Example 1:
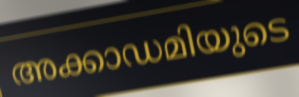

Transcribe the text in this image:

അക്കാഡമിയുടെ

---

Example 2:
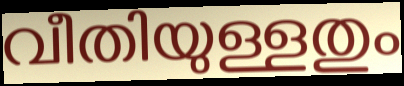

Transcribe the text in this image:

വീതിയുള്ളതും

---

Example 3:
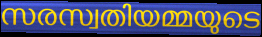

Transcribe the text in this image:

സരസ്വതിയമ്മയുടെ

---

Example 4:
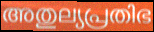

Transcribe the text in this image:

അതുല്യപ്രതിഭ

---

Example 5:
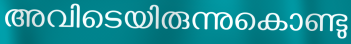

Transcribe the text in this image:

അവിടെയിരുന്നുകൊണ്ടു